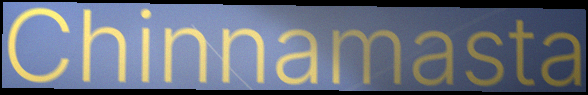
Chinnamasta